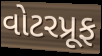
વોટરપ્રૂફ